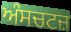
ਅੰਸਚਟਜ਼